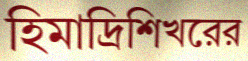
হিমাদ্রিশিখরের